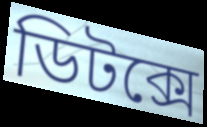
ডিটক্সে